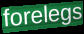
forelegs